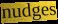
nudges